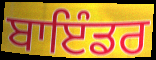
ਬਾਇੰਡਰ